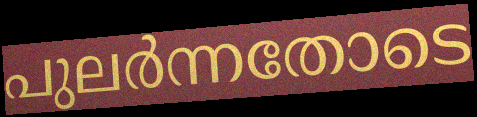
പുലർന്നതോടെ